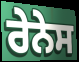
ਰੇਨੇਸ